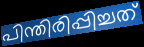
പിന്തിരിപ്പിച്ചത്